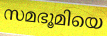
സമഭൂമിയെ